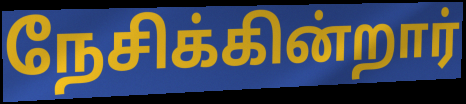
நேசிக்கின்றார்